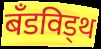
बँडविड्थ